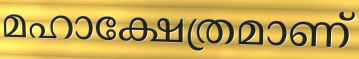
മഹാക്ഷേത്രമാണ്